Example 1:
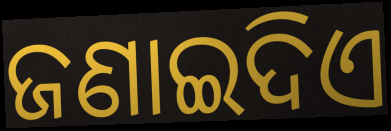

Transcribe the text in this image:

ଜଣାଇଦିଏ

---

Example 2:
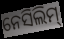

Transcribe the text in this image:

ନେସିଲିମ୍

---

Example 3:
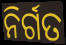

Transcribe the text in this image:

ନିର୍ଗତ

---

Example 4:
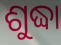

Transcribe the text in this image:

ଶୁଦ୍ଧା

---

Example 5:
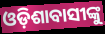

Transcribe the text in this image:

ଓଡ଼ିଶାବାସୀଙ୍କୁ